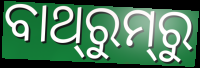
ବାଥ୍‌ରୁମ୍‌ରୁ